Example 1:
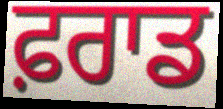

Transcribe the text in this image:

ਫ਼ਰਾਡ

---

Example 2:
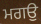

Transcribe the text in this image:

ਮਗਉ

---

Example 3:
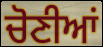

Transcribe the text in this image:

ਚੋਣੀਆਂ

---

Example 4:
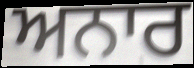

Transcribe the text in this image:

ਅਨਾਰ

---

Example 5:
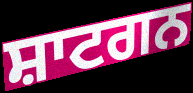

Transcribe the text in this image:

ਸ਼ਾਟਗਨ